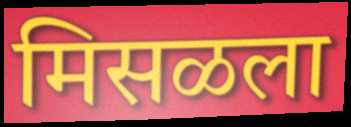
मिसळला